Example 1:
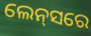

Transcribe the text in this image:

ଲେନ୍‌ସରେ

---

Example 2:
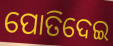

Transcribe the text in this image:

ପୋତିଦେଇ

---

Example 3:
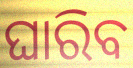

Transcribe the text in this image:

ଘାରିବ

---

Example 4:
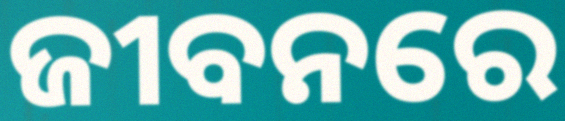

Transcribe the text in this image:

ଜୀବନରେ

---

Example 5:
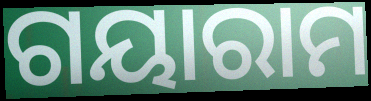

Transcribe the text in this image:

ଗୟାରାମ